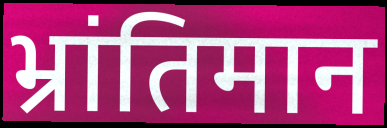
भ्रांतिमान